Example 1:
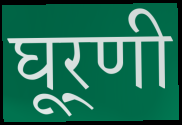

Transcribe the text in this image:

घूर्णी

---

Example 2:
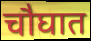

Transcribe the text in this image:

चौघात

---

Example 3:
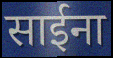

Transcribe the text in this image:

साईना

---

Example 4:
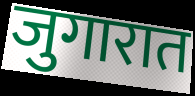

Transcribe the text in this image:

जुगारात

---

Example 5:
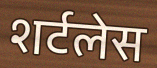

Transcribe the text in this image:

शर्टलेस